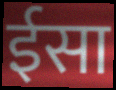
ईसा